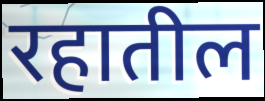
रहातील